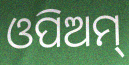
ଓପିଅମ୍